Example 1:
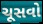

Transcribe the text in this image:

ચૂસવો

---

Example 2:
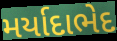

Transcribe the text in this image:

મર્યાદાભેદ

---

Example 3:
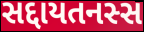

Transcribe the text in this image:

સદ્દાયતનસ્સ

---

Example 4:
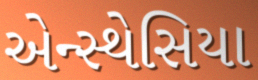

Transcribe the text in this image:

એન્સ્થેસિયા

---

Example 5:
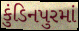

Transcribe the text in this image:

કુંડિનપુરમાં